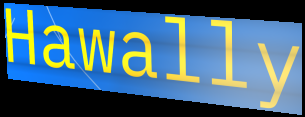
Hawally